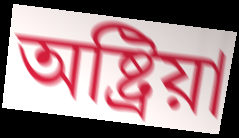
অষ্ট্ৰিয়া